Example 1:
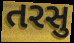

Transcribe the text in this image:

તરસુ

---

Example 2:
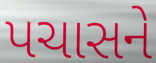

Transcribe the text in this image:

પચાસને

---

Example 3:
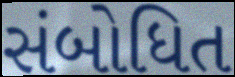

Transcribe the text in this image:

સંબોધિત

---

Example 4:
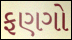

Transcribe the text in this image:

ફણગો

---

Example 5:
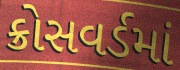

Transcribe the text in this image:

ક્રોસવર્ડમાં